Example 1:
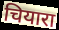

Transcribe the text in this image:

चियारा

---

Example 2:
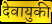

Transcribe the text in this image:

देवायुकी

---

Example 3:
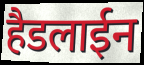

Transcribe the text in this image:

हैडलाईन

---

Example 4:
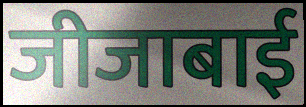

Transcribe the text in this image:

जीजाबाई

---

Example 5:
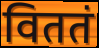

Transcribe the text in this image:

विततं